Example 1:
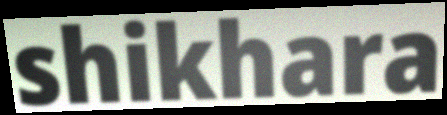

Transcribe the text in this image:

shikhara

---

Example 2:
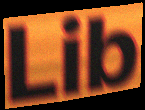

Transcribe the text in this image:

Lib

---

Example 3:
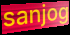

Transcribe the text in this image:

sanjog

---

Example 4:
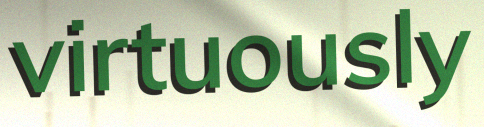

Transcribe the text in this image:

virtuously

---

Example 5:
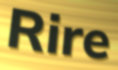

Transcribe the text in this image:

Rire